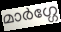
മാർഗ്ഗേ